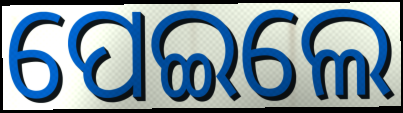
ପେଇଲେ